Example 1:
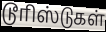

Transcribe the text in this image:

டூரிஸ்டுகள்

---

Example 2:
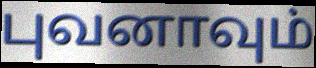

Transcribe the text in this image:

புவனாவும்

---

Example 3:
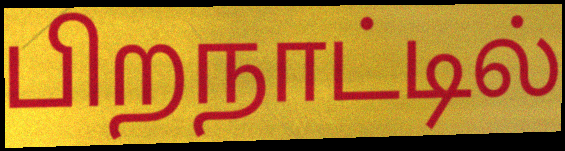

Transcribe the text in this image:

பிறநாட்டில்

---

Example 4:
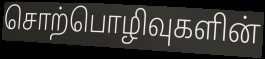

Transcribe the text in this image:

சொற்பொழிவுகளின்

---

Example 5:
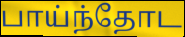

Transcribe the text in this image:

பாய்ந்தோட